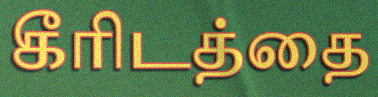
கீரிடத்தை